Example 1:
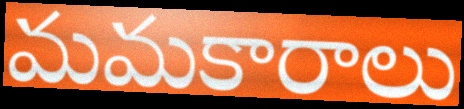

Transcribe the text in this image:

మమకారాలు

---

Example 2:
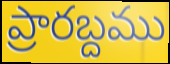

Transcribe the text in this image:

ప్రారబ్దము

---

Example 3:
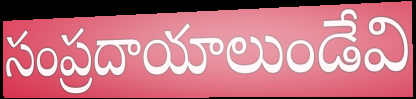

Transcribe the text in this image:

సంప్రదాయాలుండేవి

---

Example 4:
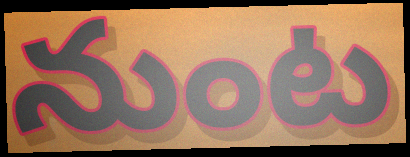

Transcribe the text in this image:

నుంట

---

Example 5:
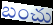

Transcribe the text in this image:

బంచు